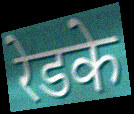
रेडके